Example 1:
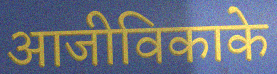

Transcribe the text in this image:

आजीविकाके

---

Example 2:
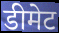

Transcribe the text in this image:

डीमेट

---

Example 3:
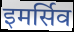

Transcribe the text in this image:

इमर्सिव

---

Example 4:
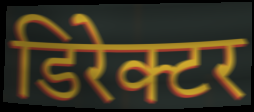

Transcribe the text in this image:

डिरेक्टर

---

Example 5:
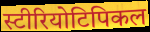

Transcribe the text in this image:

स्टीरियोटिपिकल